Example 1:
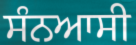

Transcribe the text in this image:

ਸੰਨਆਸੀ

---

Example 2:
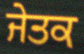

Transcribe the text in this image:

ਜੇਤਕ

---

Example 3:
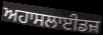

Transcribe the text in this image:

ਅਹਾਸਲਾਈਡਜ਼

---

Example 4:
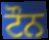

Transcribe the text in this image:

ਟੌਨ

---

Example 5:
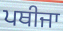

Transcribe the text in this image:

ਪਥੀਜਾ